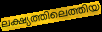
ലക്ഷ്യത്തിലെത്തിയ